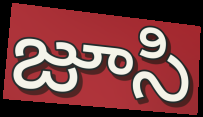
జూసి